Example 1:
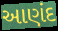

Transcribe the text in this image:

આણંદ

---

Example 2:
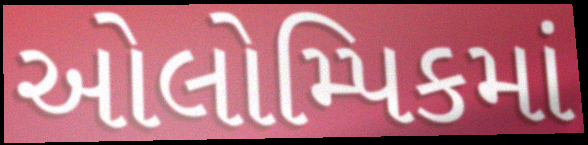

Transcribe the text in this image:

ઓલોમ્પિકમાં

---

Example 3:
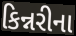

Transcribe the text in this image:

કિન્નરીના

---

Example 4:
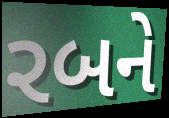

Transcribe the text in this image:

રબને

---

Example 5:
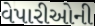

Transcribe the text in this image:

વેપારીઓની